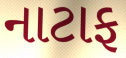
નાટાફ